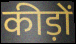
कीड़ों